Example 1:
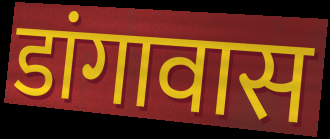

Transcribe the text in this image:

डांगावास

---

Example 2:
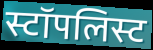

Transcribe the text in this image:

स्टॉपलिस्ट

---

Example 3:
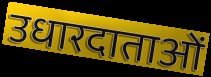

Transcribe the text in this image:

उधारदाताओं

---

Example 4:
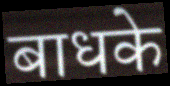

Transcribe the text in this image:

बाधके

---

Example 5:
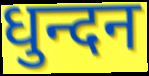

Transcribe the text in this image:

धुन्दन